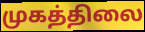
முகத்திலை